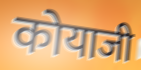
कोयाजी